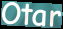
Otar